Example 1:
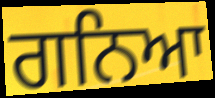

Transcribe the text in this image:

ਗਨਿਆ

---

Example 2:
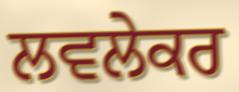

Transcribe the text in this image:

ਲਵਲੇਕਰ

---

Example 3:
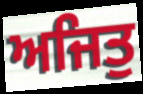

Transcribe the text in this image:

ਅਜਿਤੁ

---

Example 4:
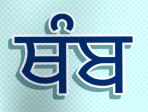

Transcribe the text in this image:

ਥੰਬ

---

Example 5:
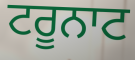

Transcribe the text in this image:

ਟਰੂਨਾਟ